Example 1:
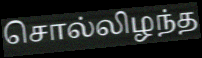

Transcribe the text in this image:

சொல்லிழந்த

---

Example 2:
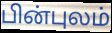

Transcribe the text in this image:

பின்புலம்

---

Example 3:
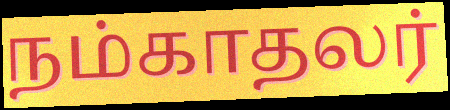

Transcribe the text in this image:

நம்காதலர்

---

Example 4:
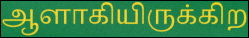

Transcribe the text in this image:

ஆளாகியிருக்கிற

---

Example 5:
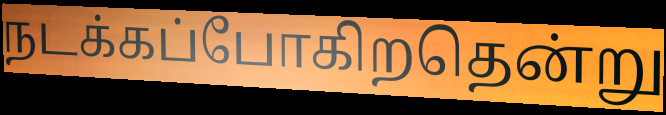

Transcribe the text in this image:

நடக்கப்போகிறதென்று